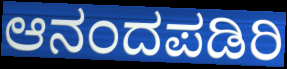
ಆನಂದಪಡಿರಿ